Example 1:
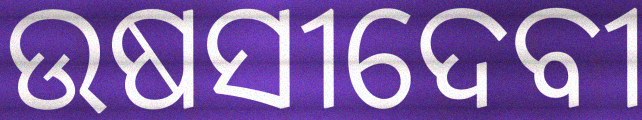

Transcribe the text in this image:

ଉଷସୀଦେବୀ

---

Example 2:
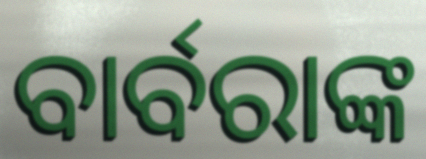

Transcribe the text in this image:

ବାର୍ବରାଙ୍କ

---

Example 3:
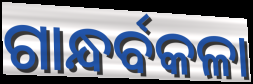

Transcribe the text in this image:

ଗାନ୍ଧର୍ବକଳା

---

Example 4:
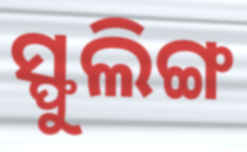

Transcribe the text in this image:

ସ୍ଫୁଲିଙ୍ଗ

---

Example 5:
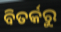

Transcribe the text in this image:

ବିତର୍କରୁ